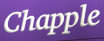
Chapple